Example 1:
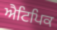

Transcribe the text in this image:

ਐਟਿਪਿਕ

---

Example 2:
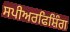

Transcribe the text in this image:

ਸਪੀਅਰਫਿਸ਼ਿੰਗ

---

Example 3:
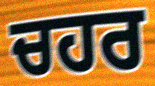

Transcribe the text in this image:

ਚਹਰ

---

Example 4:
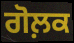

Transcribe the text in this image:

ਗੋਲ਼ਕ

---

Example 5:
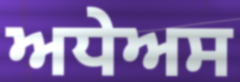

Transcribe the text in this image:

ਅਧੇਅਸ